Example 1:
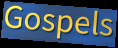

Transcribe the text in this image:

Gospels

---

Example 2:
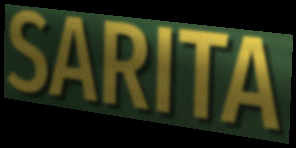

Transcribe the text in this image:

SARITA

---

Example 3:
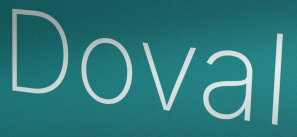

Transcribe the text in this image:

Doval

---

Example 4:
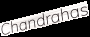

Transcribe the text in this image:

Chandrahas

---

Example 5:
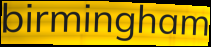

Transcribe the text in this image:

birmingham